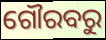
ଗୌରବରୁ